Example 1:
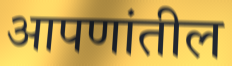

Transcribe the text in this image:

आपणांतील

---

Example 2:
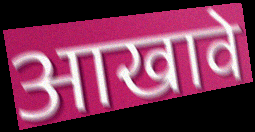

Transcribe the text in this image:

आखावे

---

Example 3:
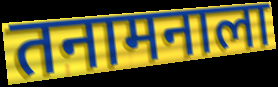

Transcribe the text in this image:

तनामनाला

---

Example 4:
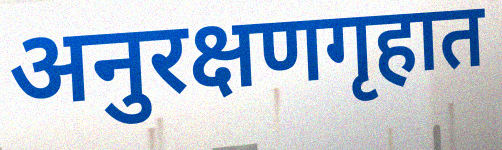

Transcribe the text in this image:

अनुरक्षणगृहात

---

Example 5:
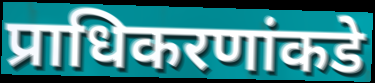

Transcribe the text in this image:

प्राधिकरणांकडे